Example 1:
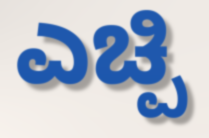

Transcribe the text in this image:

ಎಚ್ಪಿ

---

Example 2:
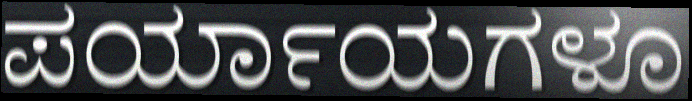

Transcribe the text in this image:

ಪರ್ಯಾಯಗಳೂ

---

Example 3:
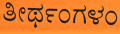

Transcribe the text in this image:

ತೀರ್ಥಂಗಳಂ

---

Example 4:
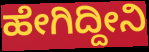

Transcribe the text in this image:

ಹೇಗಿದ್ದೀನಿ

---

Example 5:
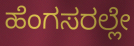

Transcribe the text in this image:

ಹೆಂಗಸರಲ್ಲೇ